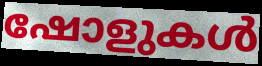
ഷോളുകൾ